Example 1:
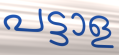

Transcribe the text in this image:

പട്ടാള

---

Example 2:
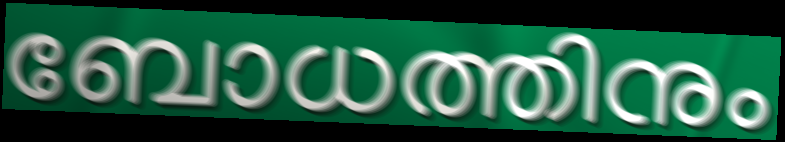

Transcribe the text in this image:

ബോധത്തിനും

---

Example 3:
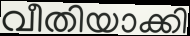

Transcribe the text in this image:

വീതിയാക്കി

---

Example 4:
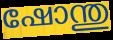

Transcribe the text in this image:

ഷോന്തു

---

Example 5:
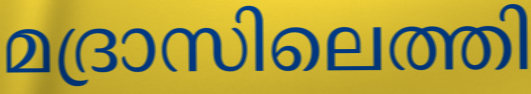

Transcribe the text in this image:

മദ്രാസിലെത്തി